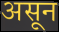
असून